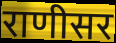
राणीसर